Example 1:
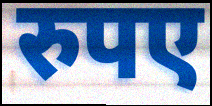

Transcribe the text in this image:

रुपए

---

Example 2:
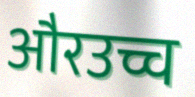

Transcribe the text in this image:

औरउच्च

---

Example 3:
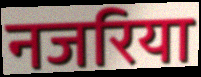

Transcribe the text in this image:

नजरिया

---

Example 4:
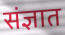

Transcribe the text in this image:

संज्ञात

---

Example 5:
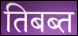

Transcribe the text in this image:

तिबब्त